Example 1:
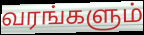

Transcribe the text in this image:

வரங்களும்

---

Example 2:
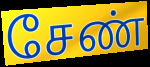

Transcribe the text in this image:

சேண்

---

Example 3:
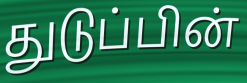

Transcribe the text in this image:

துடுப்பின்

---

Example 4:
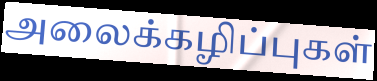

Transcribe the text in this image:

அலைக்கழிப்புகள்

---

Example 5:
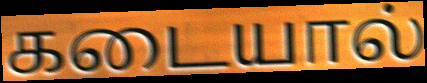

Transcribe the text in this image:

கடையால்